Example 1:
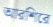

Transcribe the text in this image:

আরশিরে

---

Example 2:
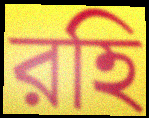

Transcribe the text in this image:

রহি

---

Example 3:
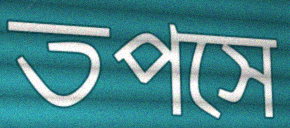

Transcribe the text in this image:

তপসে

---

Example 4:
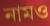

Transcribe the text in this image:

নামও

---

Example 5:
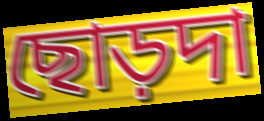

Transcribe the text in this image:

ছোড়দা